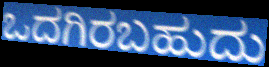
ಒದಗಿರಬಹುದು